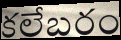
కలేబరం